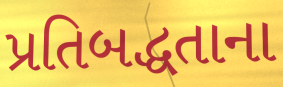
પ્રતિબદ્ધતાના